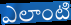
ఎలాంటి